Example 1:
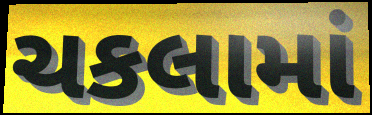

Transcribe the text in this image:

ચકલામાં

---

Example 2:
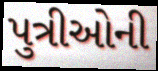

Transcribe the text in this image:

પુત્રીઓની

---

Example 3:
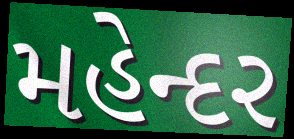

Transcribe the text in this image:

મહેન્દર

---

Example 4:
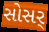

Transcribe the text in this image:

સોસર્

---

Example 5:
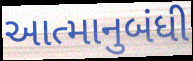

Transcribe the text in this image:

આત્માનુબંધી